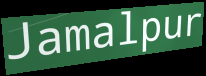
Jamalpur